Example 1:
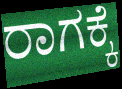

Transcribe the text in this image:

ರಾಗಕ್ಕೆ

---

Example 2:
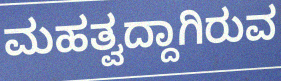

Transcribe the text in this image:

ಮಹತ್ವದ್ದಾಗಿರುವ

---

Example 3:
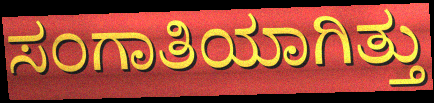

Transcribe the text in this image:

ಸಂಗಾತಿಯಾಗಿತ್ತು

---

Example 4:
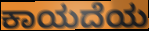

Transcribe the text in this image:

ಕಾಯದೆಯ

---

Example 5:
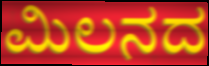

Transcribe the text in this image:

ಮಿಲನದ